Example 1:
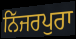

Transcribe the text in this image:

ਨਿੱਜਰਪੁਰਾ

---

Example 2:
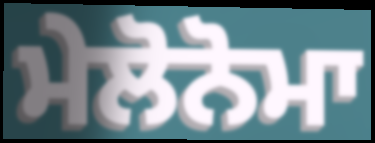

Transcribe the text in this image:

ਮੇਲੋਨੋਮਾ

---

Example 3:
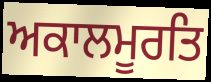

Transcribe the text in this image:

ਅਕਾਲਮੂਰਤਿ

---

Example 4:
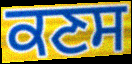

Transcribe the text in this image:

ਕਣਸ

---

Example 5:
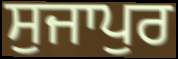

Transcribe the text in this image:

ਸੁਜਾਪੁਰ